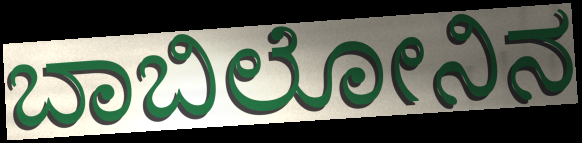
ಬಾಬಿಲೋನಿನ